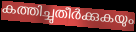
കത്തിച്ചുതീർക്കുകയും